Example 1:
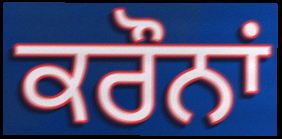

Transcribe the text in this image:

ਕਰੌਨਾਂ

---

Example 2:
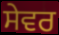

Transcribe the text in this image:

ਸੇਵਰ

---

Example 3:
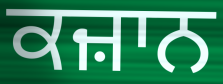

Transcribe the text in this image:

ਕਜ਼ਾਨ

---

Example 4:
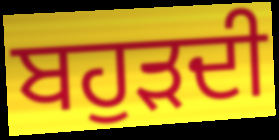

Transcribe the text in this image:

ਬਹੁੜਦੀ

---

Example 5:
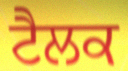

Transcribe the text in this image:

ਟੈਲਕ